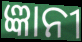
ଜ୍ଞାନୀ